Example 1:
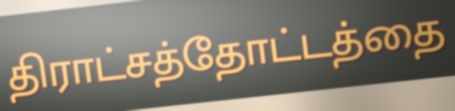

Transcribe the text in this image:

திராட்சத்தோட்டத்தை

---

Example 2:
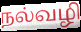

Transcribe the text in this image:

நல்வழி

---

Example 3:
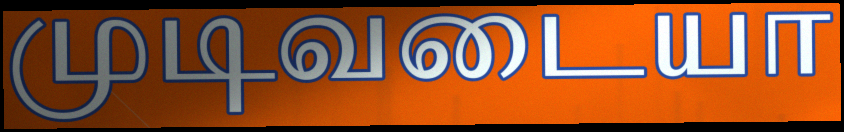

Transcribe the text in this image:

முடிவடையா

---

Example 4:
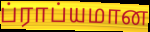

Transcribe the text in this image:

ப்ராப்யமான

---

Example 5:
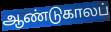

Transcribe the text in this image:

ஆண்டுகாலப்